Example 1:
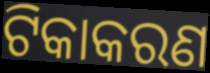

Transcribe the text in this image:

ଟିକାକରଣ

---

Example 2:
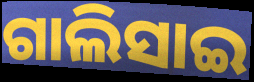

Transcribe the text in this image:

ଗାଲିସାଇ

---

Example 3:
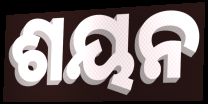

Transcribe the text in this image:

ଶୟନ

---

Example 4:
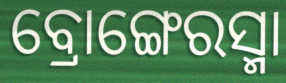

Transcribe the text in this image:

ବ୍ରୋଙ୍ଗେରସ୍ମା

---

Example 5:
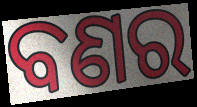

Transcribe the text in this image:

ବଣର